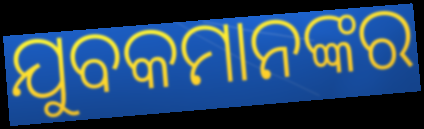
ଯୁବକମାନଙ୍କର